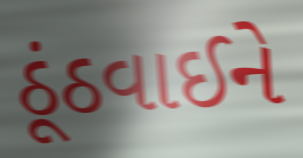
ઠૂંઠવાઈને